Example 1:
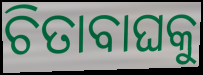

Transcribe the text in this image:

ଚିତାବାଘକୁ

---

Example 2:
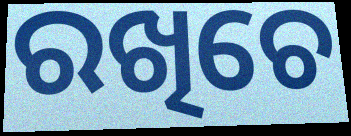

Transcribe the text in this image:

ରଖିଚେ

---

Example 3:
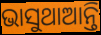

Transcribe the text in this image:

ଭାସୁଥାଆନ୍ତି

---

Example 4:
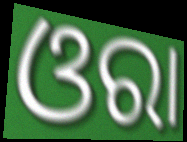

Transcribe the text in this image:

ଓରା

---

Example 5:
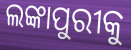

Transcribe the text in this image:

ଲଙ୍କାପୁରୀକୁ